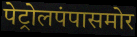
पेट्रोलपंपासमोर